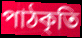
পাঠকৃতি